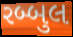
રબ્બુલ